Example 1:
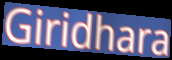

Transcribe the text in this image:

Giridhara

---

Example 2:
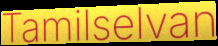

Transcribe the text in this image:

Tamilselvan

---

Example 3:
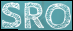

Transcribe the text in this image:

SRO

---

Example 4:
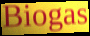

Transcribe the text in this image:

Biogas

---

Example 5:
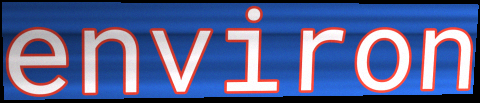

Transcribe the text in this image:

environ